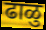
ढाळु